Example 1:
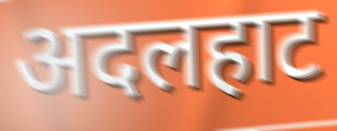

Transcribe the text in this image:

अदलहाट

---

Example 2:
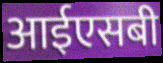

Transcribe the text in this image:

आईएसबी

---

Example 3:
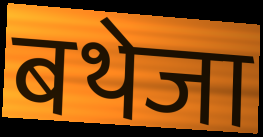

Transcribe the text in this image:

बथेजा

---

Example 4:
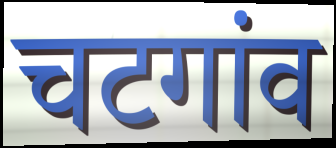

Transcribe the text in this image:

चटगांव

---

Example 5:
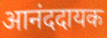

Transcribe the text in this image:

आनंददायक